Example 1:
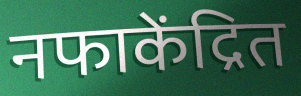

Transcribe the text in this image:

नफाकेंद्रित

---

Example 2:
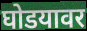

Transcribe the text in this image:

घोडयावर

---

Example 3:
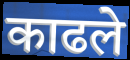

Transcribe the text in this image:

काढले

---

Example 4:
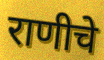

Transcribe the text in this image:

राणीचे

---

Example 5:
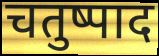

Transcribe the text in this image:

चतुष्पाद